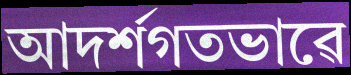
আদৰ্শগতভাৱে